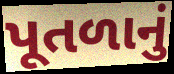
પૂતળાનું